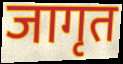
जागृत